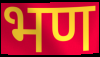
भण